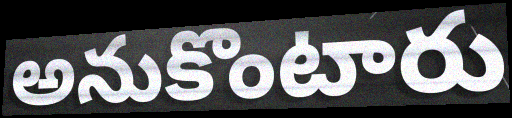
అనుకొంటారు